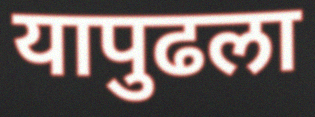
यापुढला